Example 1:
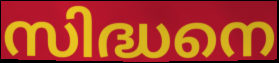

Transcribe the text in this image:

സിദ്ധനെ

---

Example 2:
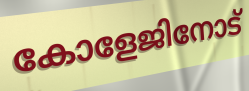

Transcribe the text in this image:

കോളേജിനോട്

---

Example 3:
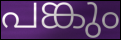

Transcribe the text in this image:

പങ്കും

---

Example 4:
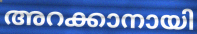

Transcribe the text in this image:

അറക്കാനായി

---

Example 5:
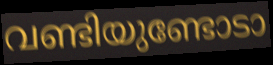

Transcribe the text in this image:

വണ്ടിയുണ്ടോടാ